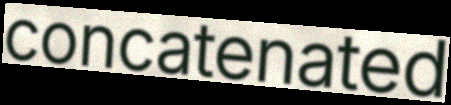
concatenated